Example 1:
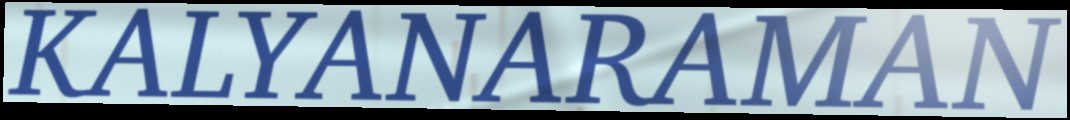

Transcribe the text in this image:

KALYANARAMAN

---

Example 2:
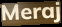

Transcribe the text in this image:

Meraj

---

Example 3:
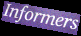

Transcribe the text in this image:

Informers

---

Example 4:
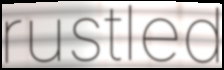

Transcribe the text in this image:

rustled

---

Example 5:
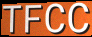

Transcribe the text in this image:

TFCC